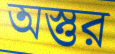
অস্তুর